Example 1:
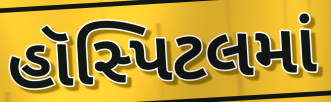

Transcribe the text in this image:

હૉસ્પિટલમાં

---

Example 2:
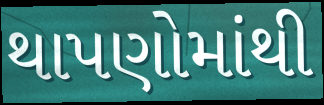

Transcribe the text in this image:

થાપણોમાંથી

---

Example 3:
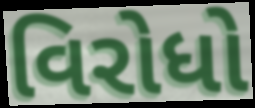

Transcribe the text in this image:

વિરોધો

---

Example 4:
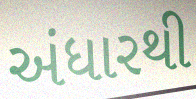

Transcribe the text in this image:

અંધારથી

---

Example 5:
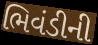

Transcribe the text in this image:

ભિવંડીની